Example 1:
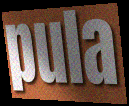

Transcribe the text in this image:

pula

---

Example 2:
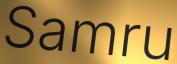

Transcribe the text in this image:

Samru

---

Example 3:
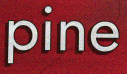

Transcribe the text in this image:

pine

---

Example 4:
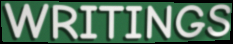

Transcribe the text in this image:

WRITINGS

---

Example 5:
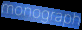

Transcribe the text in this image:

monograph